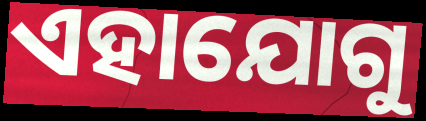
ଏହାଯୋଗୁ